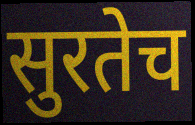
सुरतेच